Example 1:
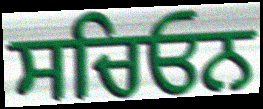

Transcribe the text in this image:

ਸਚਿਓਨ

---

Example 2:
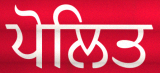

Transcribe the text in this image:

ਪੋਲਿਤ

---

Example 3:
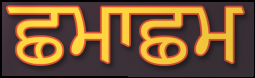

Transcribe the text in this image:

ਛਮਾਛਮ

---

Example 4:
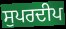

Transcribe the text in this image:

ਸੁਪਰਦੀਪ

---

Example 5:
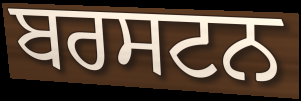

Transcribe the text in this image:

ਬਰਸਟਨ